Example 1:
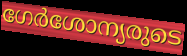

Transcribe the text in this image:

ഗേർശോന്യരുടെ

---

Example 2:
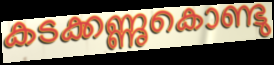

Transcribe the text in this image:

കടക്കണ്ണുകൊണ്ടു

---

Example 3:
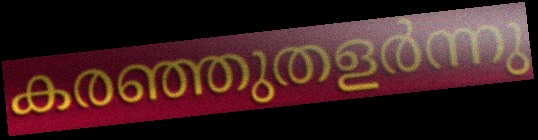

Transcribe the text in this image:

കരഞ്ഞുതളർന്നു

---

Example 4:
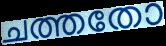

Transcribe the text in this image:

ചത്തതോ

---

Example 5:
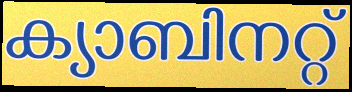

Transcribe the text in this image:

ക്യാബിനറ്റ്